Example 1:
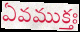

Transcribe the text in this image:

ఏవముక్తః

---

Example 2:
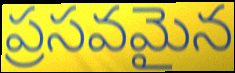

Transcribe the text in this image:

ప్రసవమైన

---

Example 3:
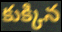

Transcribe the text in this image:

కుక్కిన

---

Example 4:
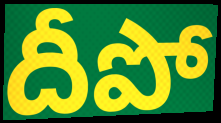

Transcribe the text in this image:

దీపో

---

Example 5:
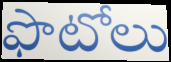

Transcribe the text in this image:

ఫొటోలు